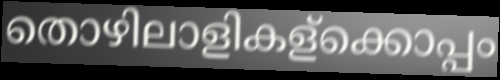
തൊഴിലാളികള്ക്കൊപ്പം